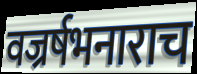
वज्रर्षभनाराच